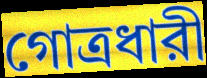
গোত্রধারী